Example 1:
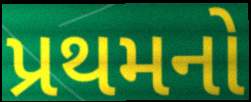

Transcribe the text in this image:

પ્રથમનો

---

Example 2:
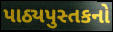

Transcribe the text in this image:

પાઠ્યપુસ્તકનો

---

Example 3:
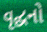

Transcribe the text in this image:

વૃદ્ઘનો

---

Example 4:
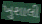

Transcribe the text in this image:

ખુશાલી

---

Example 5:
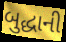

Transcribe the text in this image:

બુદ્ધાની